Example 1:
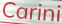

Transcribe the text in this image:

Carini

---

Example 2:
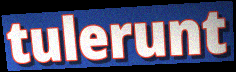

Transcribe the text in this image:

tulerunt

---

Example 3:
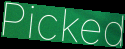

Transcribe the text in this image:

Picked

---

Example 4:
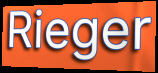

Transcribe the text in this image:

Rieger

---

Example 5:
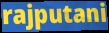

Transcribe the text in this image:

rajputani